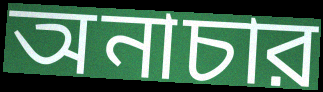
অনাচার